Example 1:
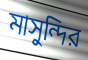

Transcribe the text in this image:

মাসুন্দির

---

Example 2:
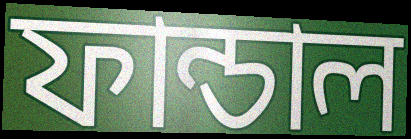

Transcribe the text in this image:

ফান্ডাল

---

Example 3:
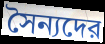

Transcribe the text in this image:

সৈন্যদের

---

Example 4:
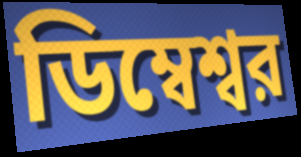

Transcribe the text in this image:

ডিম্বেশ্বর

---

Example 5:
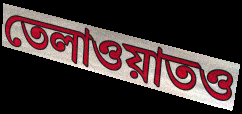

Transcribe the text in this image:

তেলাওয়াতও